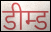
डीम्ड